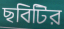
ছবিটির